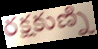
రక్షకుణ్ని